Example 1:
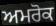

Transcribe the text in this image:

ਅਮਰੋਕ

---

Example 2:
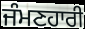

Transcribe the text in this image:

ਜੰਮਣਹਾਰੀ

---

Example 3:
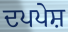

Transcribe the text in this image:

ਦਪਪੇਸ਼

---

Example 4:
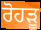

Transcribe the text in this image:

ਰੋਹੜੂ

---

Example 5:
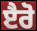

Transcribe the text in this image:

ੲੈਰੋ